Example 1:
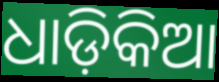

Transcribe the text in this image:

ଧାଡ଼ିକିଆ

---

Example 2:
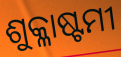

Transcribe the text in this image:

ଶୁକ୍ଳାଷ୍ଟମୀ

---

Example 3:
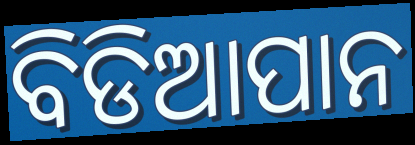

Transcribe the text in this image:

ବିଡିଆପାନ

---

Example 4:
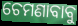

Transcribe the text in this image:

ଚେମଣାବାବୁ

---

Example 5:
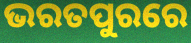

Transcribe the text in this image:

ଭରତପୁରରେ